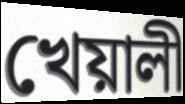
খেয়ালী